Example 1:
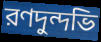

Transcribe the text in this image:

রণদুন্দভি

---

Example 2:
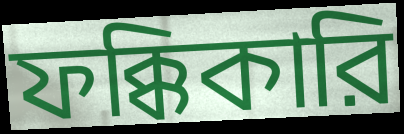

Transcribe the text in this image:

ফক্কিকারি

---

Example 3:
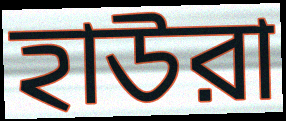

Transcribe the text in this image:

হাউরা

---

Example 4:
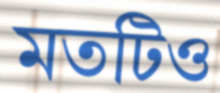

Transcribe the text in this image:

মতটিও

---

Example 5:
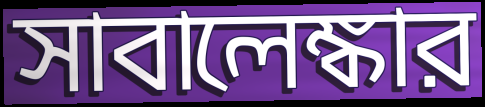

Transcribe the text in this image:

সাবালেঙ্কার